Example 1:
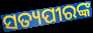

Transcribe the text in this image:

ସତ୍ୟପୀରଙ୍କ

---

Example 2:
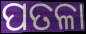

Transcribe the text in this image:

ପତଳା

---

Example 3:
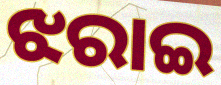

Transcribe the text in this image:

ଝରାଇ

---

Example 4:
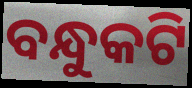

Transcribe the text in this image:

ବନ୍ଧୁକଟି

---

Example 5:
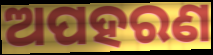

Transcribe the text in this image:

ଅପହରଣ